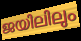
ജയിലിലും